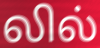
லில்